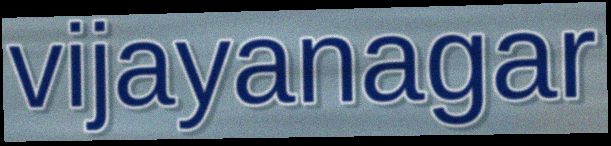
vijayanagar